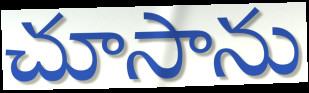
చూసాను